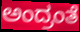
ಅಂದ್ರಂತೆ